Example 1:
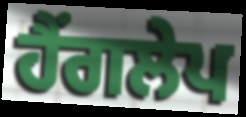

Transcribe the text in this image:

ਹੈਂਗਲੇਪ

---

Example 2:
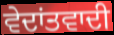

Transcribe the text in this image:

ਵੇਦਾਂਤਵਾਦੀ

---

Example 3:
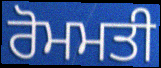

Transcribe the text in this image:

ਰੋਮਮਤੀ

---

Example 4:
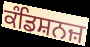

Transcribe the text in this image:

ਕੰਡਿਸ਼ਨਜ਼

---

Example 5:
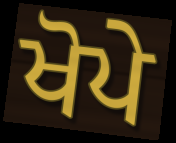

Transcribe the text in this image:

ਖੋਪੇ